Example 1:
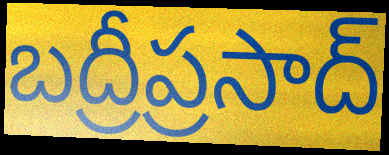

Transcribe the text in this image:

బద్రీప్రసాద్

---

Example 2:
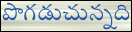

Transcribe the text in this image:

పొగడుచున్నది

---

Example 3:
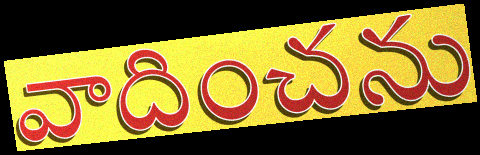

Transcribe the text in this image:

వాదించను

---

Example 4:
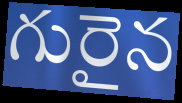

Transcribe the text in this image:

గురైన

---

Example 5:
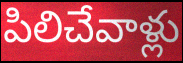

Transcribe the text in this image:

పిలిచేవాళ్లు